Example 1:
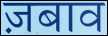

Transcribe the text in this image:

ज़बाव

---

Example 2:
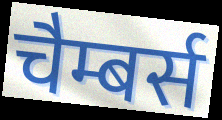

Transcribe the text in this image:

चैम्‍बर्स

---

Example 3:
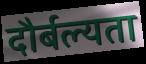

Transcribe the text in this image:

दौर्बल्यता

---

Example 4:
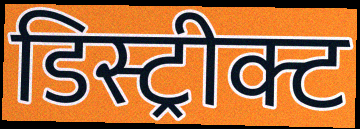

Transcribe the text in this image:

डिस्ट्रीक्ट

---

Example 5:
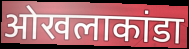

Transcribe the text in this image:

ओखलाकांडा